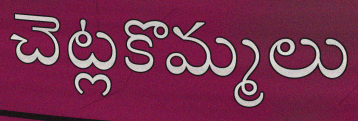
చెట్లకొమ్మలు